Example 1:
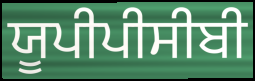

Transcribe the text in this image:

ਯੂਪੀਪੀਸੀਬੀ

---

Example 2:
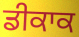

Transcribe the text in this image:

ਡੀਕਾਕ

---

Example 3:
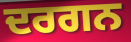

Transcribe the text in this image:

ਦਰਗਨ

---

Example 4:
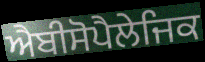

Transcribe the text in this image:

ਐਬੀਸੋਪੈਲੇਜਿਕ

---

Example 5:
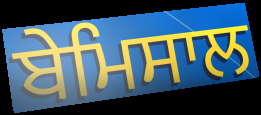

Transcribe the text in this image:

ਬੇਮਿਸਾਲ